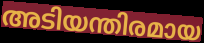
അടിയന്തിരമായ